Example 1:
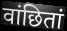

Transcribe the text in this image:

वांछितां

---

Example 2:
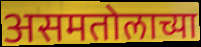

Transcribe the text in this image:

असमतोलाच्या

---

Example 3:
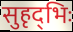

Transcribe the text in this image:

सुहृद्भिः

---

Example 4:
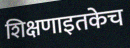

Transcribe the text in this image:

शिक्षणाइतकेच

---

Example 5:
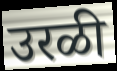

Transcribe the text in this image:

उरळी